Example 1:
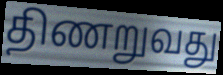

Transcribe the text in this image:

திணறுவது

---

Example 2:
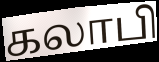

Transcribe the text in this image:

கலாபி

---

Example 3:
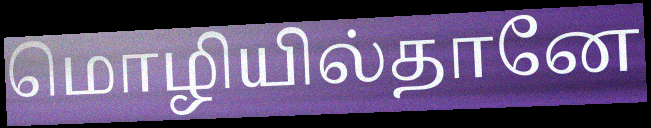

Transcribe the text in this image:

மொழியில்தானே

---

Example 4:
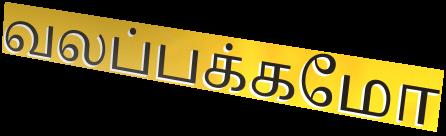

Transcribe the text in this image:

வலப்பக்கமோ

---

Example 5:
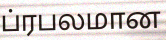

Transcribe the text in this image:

ப்ரபலமான